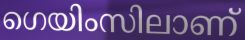
ഗെയിംസിലാണ്